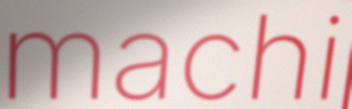
machi